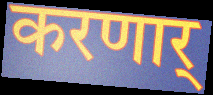
करणार्